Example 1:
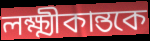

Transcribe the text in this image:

লক্ষ্মীকান্তকে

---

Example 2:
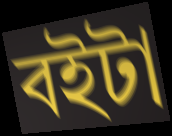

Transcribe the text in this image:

বইটা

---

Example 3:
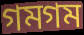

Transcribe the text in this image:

গমগম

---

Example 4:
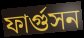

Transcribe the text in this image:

ফার্গুসন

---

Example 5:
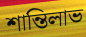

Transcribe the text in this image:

শান্তিলাভ